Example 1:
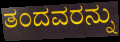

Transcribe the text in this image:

ತಂದವರನ್ನು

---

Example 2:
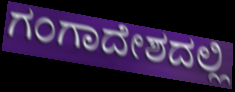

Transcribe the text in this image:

ಗಂಗಾದೇಶದಲ್ಲಿ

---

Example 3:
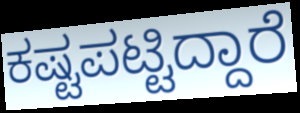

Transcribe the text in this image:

ಕಷ್ಟಪಟ್ಟಿದ್ದಾರೆ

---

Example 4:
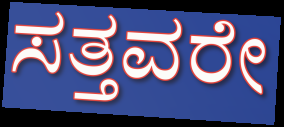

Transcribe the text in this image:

ಸತ್ತವರೇ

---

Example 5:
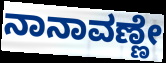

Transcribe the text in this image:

ನಾನಾವಣ್ಣೇ